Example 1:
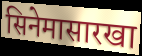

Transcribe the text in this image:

सिनेमासारखा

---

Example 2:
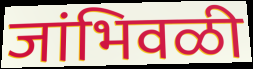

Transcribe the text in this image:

जांभिवळी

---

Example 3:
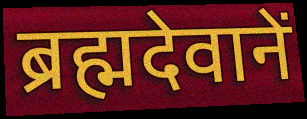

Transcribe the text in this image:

ब्रह्मदेवानें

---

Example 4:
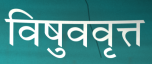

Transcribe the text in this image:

विषुववृत्त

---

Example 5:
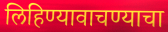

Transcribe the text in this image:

लिहिण्यावाचण्याचा